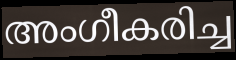
അംഗീകരിച്ച